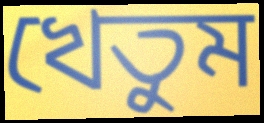
খেতুম